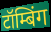
टॉम्बिंग